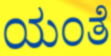
ಯಂತೆ